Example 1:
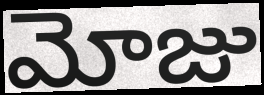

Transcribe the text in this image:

మోజు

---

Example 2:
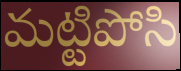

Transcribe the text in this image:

మట్టిపోసి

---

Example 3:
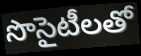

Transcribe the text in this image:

సొసైటీలతో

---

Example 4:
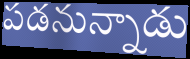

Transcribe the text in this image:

పడనున్నాడు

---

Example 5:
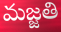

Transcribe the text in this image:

మజ్జతి